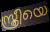
സ്ത്രീയെ